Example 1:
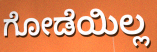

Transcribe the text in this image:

ಗೋಡೆಯಿಲ್ಲ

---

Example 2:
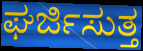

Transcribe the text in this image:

ಘರ್ಜಿಸುತ್ತ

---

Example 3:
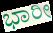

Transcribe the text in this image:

ಭಾರೀ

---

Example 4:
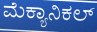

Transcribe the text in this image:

ಮೆಕ್ಯಾನಿಕಲ್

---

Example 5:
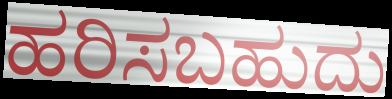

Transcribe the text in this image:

ಹರಿಸಬಹುದು